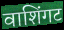
वाशिंगट